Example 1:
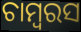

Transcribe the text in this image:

ଚାମ୍ବରସ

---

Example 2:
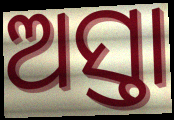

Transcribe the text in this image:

ଅସ୍ତା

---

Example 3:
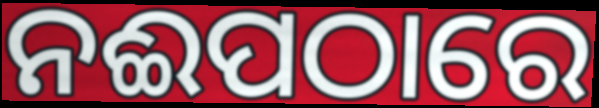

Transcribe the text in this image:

ନଈପଠାରେ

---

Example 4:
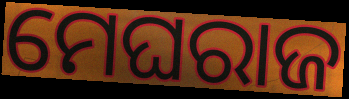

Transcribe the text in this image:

ମେଘରାଜ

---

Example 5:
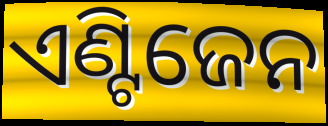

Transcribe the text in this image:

ଏଣ୍ଟିଜେନ